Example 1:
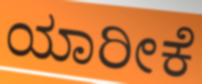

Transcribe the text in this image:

ಯಾರೀಕೆ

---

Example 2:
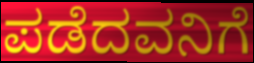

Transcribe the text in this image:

ಪಡೆದವನಿಗೆ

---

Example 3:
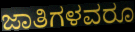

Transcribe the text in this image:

ಜಾತಿಗಳವರೂ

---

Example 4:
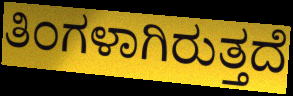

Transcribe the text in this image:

ತಿಂಗಳಾಗಿರುತ್ತದೆ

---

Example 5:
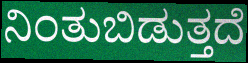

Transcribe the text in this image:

ನಿಂತುಬಿಡುತ್ತದೆ